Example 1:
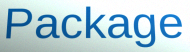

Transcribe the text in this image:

Package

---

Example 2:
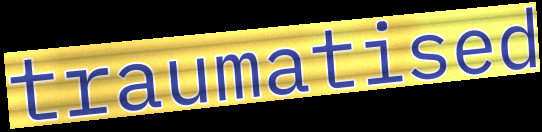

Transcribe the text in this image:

traumatised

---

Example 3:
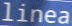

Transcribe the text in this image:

linea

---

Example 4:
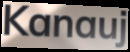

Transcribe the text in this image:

Kanauj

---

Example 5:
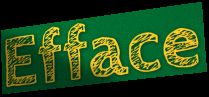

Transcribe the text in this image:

Efface